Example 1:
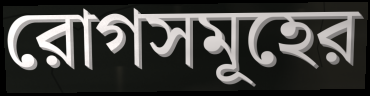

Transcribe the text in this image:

রোগসমূহের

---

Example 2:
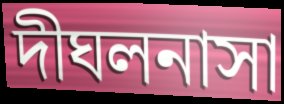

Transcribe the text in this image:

দীঘলনাসা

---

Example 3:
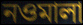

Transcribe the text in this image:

নওমালা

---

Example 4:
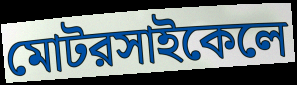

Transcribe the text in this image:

মোটরসাইকেলে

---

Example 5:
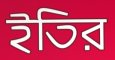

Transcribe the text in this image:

ইতির